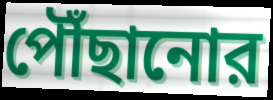
পৌঁছানোর